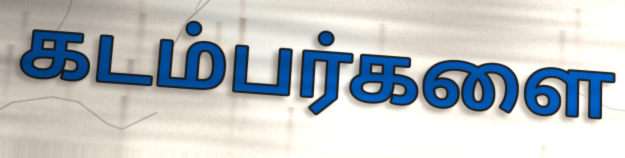
கடம்பர்களை